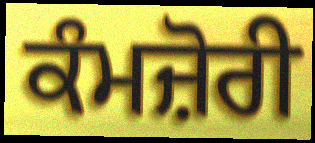
ਕੰਮਜ਼ੋਰੀ